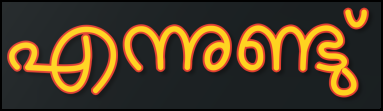
എന്നുണ്ടു്